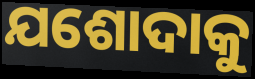
ଯଶୋଦାକୁ